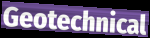
Geotechnical